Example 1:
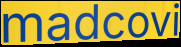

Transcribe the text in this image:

madcovi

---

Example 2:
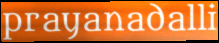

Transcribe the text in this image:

prayanadalli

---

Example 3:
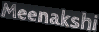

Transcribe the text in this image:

Meenakshi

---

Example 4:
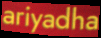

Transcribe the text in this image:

ariyadha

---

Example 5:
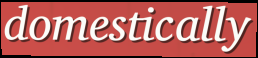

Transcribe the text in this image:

domestically